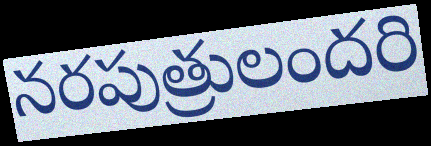
నరపుత్రులందరి